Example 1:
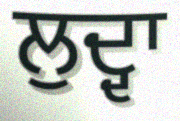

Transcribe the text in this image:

ਲੁਦ੍ਦਾ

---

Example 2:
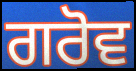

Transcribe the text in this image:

ਗਰੋਵ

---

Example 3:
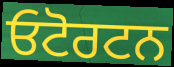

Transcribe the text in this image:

ਓਟੋਰਟਨ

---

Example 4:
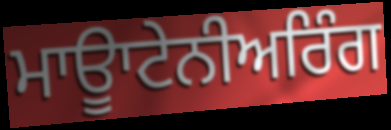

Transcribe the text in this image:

ਮਾਊਾਟੇਨੀਅਰਿੰਗ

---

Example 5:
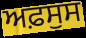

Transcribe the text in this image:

ਅਫ਼ਸੁਸ